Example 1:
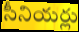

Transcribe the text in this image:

సీనియర్లు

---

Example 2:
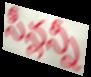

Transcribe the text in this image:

సీన్లన్నీ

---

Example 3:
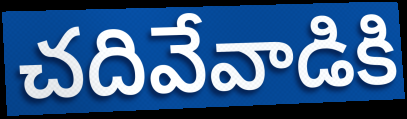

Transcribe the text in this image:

చదివేవాడికి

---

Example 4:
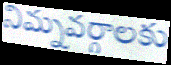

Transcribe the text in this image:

నిమ్నవర్గాలకు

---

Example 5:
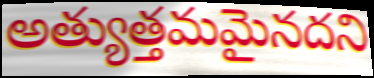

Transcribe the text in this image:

అత్యుత్తమమైనదని